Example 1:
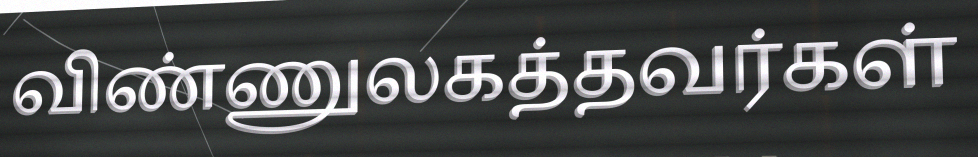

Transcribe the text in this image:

விண்ணுலகத்தவர்கள்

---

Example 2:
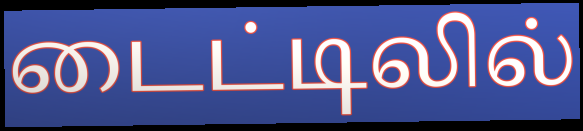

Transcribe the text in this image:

டைட்டிலில்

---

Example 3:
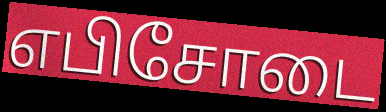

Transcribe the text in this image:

எபிசோடை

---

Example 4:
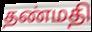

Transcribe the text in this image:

தண்மதி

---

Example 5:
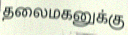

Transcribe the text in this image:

தலைமகனுக்கு